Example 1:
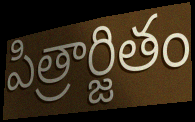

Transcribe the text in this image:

పిత్రార్జితం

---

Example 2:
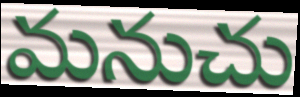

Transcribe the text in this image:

మనుచు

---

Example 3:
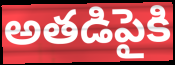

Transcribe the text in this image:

అతడిపైకి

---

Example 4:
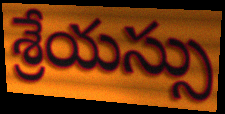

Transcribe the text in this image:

శ్రేయస్సు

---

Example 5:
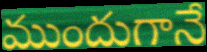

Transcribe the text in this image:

ముందుగానే